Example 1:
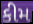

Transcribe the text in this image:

કીમ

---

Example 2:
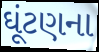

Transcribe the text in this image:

ઘૂંટણના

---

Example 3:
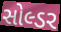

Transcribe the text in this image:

સોલ્ડર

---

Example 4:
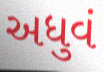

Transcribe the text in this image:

અધુવં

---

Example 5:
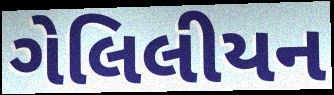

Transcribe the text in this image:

ગેલિલીયન